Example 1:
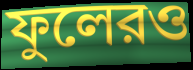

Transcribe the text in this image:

ফুলেরও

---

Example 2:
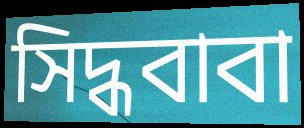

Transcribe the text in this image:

সিদ্ধবাবা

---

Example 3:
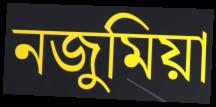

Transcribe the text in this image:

নজুমিয়া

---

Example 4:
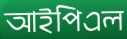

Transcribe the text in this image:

আইপিএল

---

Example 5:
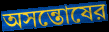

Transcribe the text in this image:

অসন্তোষের